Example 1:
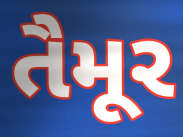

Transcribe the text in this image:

તૈમૂર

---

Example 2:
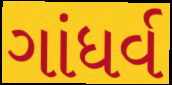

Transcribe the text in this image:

ગાંધર્વ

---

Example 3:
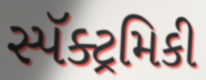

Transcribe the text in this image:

સ્પૅક્ટ્રમિકી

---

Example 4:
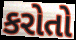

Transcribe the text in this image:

કરોતો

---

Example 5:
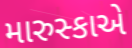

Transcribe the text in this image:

મારુસ્કાએ